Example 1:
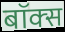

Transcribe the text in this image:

बॉक्‍स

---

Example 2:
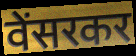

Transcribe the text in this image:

वेंसरकर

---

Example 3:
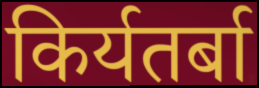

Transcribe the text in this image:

किर्यतर्बा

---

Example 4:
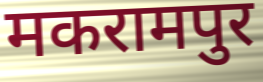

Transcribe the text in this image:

मकरामपुर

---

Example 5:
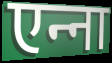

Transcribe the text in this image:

एन्ना